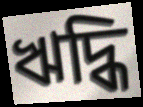
ঋদ্ধি